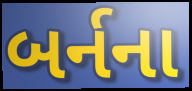
બર્નના